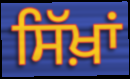
ਸਿੱਖ਼ਾਂ